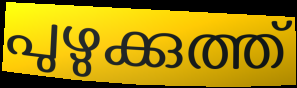
പുഴുക്കുത്ത്